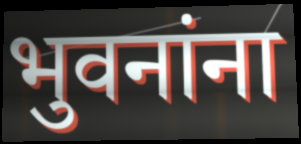
भुवनांना